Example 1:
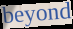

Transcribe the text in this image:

beyond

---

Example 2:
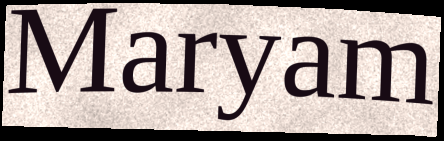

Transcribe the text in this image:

Maryam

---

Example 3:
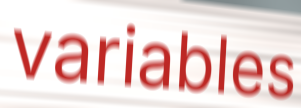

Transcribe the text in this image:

variables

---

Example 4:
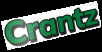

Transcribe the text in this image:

Crantz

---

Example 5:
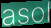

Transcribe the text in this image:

asol